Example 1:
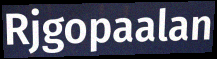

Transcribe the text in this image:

Rjgopaalan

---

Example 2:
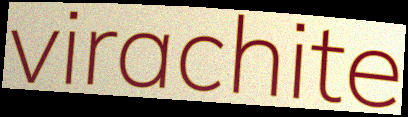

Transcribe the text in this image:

virachite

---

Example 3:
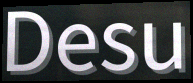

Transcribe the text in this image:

Desu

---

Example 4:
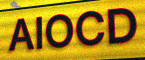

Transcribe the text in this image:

AIOCD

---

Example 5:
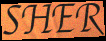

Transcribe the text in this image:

SHER